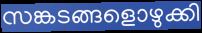
സങ്കടങ്ങളൊഴുക്കി